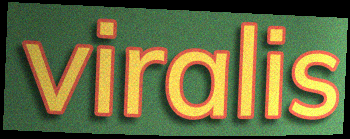
viralis